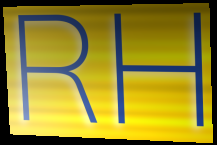
RH